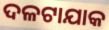
ଦଳଟାଯାକ